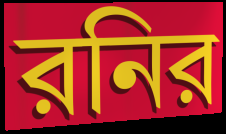
রনির